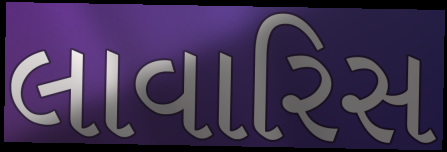
લાવારિસ